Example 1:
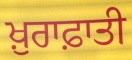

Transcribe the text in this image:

ਖ਼ੁਰਾਫ਼ਾਤੀ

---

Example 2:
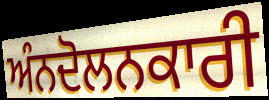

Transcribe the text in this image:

ਅੰਨਦੋਲਨਕਾਰੀ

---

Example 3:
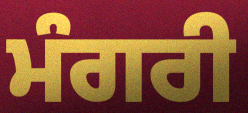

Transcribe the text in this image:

ਮੰਗਰੀ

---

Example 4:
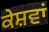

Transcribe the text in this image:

ਕੇਸ਼ਵਾਂ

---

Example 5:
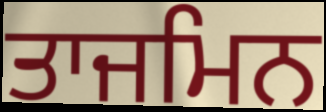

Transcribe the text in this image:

ਤਾਜਮਿਨ